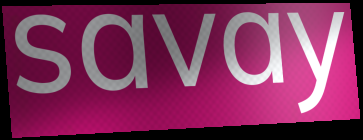
savay